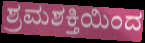
ಶ್ರಮಶಕ್ತಿಯಿಂದ